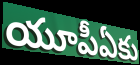
యూపీఏకు